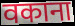
वकाना